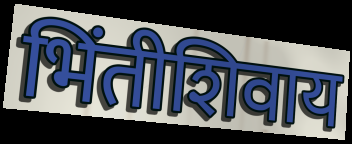
भिंतीशिवाय